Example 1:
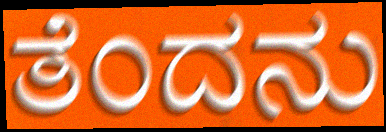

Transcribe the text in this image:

ತೆಂದನು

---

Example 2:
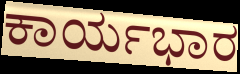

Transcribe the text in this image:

ಕಾರ್ಯಭಾರ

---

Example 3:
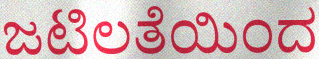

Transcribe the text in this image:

ಜಟಿಲತೆಯಿಂದ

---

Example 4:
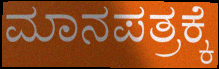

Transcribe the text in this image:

ಮಾನಪತ್ರಕ್ಕೆ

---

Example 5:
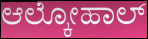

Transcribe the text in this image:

ಆಲ್ಕೋಹಾಲ್